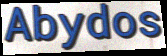
Abydos